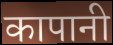
कापानी